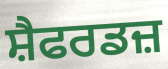
ਸ਼ੈਫਰਡਜ਼